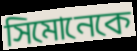
সিমোনেকে